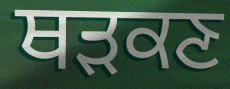
ਥੜਕਣ